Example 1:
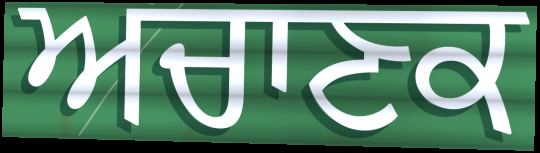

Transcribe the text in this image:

ਅਚਾਣਕ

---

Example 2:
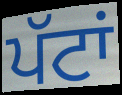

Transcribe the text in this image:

ਪੱਟਾਂ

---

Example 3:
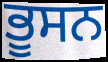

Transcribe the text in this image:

ਭੂਸਨ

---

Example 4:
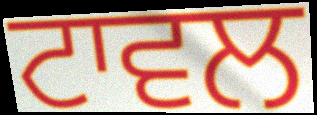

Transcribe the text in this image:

ਟਾਵਲ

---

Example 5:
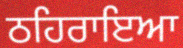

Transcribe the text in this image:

ਠਹਿਰਾਇਆ